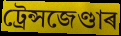
ট্ৰেন্সজেণ্ডাৰ